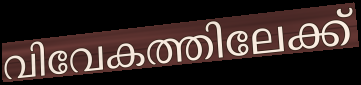
വിവേകത്തിലേക്ക്